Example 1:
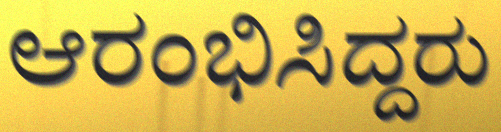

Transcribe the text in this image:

ಆರಂಭಿಸಿದ್ದರು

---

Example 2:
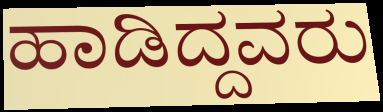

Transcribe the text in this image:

ಹಾಡಿದ್ದವರು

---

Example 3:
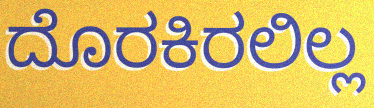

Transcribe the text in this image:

ದೊರಕಿರಲಿಲ್ಲ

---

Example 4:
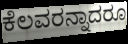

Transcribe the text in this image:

ಕೆಲವರನ್ನಾದರೂ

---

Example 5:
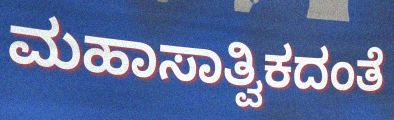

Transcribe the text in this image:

ಮಹಾಸಾತ್ವಿಕದಂತೆ